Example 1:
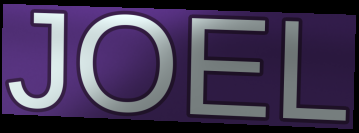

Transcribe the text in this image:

JOEL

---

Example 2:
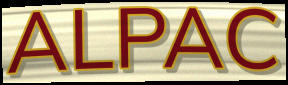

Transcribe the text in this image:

ALPAC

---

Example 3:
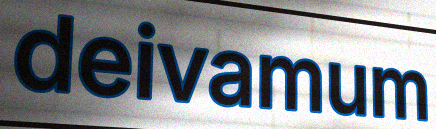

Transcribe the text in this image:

deivamum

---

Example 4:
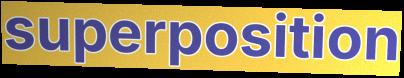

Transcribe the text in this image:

superposition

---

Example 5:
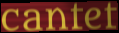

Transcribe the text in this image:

cantet